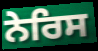
ਨੇਰਿਸ